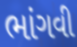
ભાંગવી